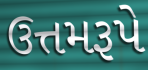
ઉત્તમરૂપે